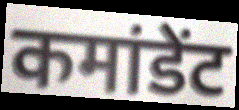
कमांडेंट